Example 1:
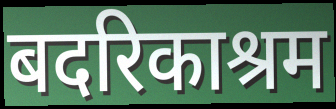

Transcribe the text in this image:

बदरिकाश्रम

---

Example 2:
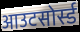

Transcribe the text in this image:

आउटसोर्स्ड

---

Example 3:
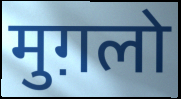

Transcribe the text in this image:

मुग़लो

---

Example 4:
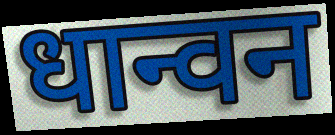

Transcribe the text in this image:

धान्वन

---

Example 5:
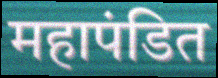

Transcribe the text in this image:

महापंडित